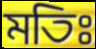
মতিঃ